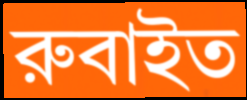
রুবাইত